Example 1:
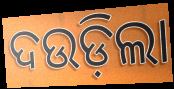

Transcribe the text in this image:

ଦଉଡ଼ିଲା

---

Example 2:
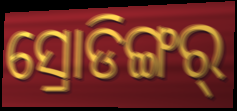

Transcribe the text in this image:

ସ୍ରୋଡିଙ୍ଗର୍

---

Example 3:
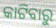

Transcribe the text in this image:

କାଟିବାରୁ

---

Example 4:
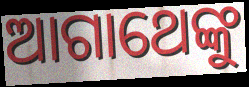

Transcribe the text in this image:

ଆଗାଥେଙ୍କୁ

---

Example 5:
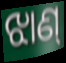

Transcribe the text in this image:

ଝାଣ୍